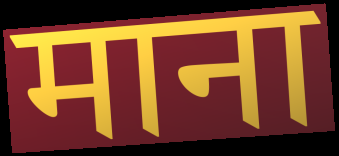
माना